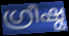
ഗ്രീഷ്മ